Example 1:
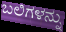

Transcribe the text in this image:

ಬಲಿಗಳನ್ನು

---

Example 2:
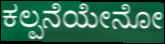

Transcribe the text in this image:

ಕಲ್ಪನೆಯೇನೋ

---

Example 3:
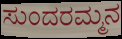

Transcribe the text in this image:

ಸುಂದರಮ್ಮನ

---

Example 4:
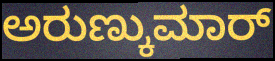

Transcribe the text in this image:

ಅರುಣ್ಕುಮಾರ್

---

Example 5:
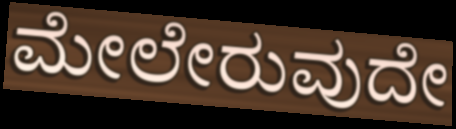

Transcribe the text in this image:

ಮೇಲೇರುವುದೇ